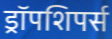
ड्रॉपशिपर्स